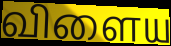
விளைய